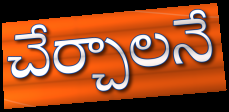
చేర్చాలనే